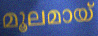
മൂലമായ്